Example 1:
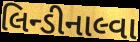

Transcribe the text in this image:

લિન્ડીનાલ્વા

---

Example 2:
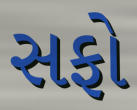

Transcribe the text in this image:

સફો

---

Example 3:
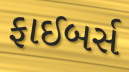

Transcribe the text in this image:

ફાઈબર્સ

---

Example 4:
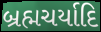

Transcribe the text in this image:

બ્રહ્મચર્યાદિ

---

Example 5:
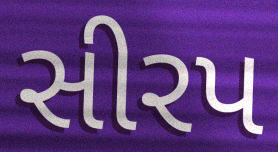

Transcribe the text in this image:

સીરપ